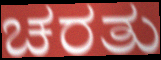
ಚರತು